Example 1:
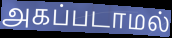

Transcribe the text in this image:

அகப்படாமல்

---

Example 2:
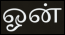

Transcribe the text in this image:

ஓன்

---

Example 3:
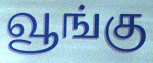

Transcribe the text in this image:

வூங்கு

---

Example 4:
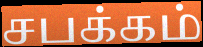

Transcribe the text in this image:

சபக்கம்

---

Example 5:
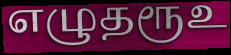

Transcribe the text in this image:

எழுதரூஉ